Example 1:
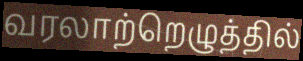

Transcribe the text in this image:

வரலாற்றெழுத்தில்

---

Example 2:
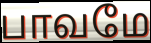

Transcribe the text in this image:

பாவமே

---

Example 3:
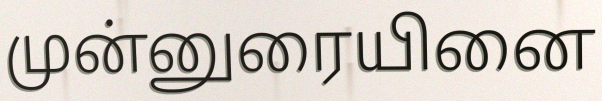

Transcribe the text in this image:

முன்னுரையினை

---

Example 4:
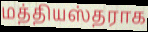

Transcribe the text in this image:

மத்தியஸ்தராக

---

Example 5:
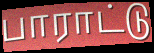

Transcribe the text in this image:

பாராட்டு